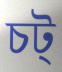
চট্